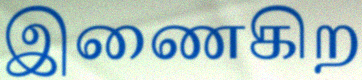
இணைகிற